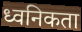
ध्वनिकता